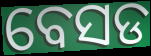
ବେସଡ